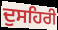
ਦੁਸਹਿਰੀ